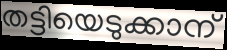
തട്ടിയെടുക്കാന്